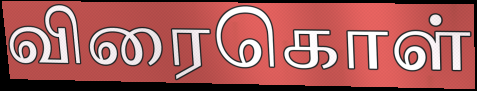
விரைகொள்